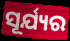
ସୂର୍ଯ୍ୟର